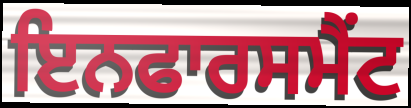
ਇਨਫਾਰਸਮੈਂਟ